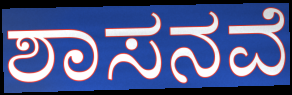
ಶಾಸನವೆ